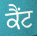
ਕੈਂਟ